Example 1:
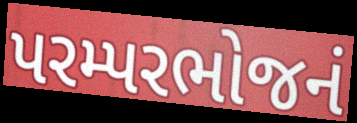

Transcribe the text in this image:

પરમ્પરભોજનં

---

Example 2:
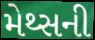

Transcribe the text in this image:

મેથ્સની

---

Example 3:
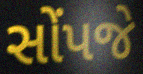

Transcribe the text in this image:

સોંપજે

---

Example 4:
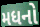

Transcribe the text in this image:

મધનો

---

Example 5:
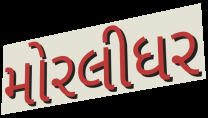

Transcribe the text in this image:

મોરલીધર